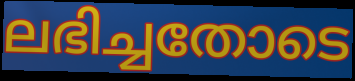
ലഭിച്ചതോടെ